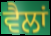
ਵੈਲਾਂ